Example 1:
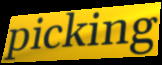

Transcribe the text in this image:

picking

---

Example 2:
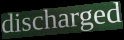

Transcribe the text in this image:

discharged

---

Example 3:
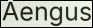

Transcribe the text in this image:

Aengus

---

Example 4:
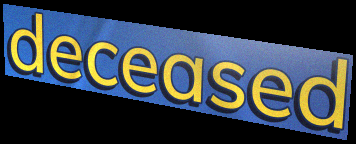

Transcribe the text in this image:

deceased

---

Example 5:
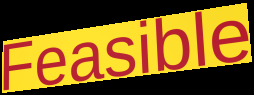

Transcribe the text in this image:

Feasible